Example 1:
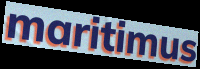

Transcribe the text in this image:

maritimus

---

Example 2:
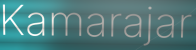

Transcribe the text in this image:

Kamarajar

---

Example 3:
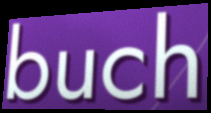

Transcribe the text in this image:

buch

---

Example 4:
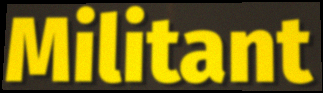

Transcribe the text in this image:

Militant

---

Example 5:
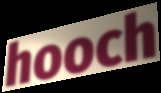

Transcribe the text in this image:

hooch